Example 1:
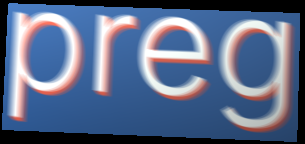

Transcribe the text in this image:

preg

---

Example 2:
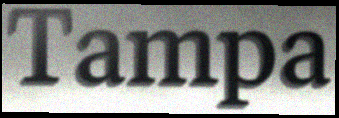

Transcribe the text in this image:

Tampa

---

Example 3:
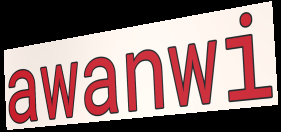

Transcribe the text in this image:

awanwi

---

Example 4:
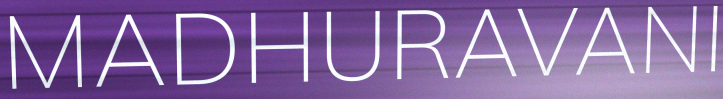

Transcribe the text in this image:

MADHURAVANI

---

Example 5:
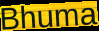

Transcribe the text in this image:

Bhuma